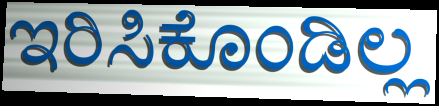
ಇರಿಸಿಕೊಂಡಿಲ್ಲ